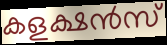
കളക്ഷൻസ്